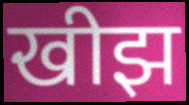
खीझ